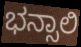
ಭನ್ಸಾಲಿ